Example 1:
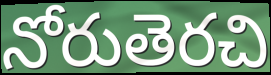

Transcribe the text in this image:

నోరుతెరచి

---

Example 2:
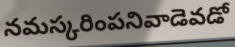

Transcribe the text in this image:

నమస్కరింపనివాడెవడో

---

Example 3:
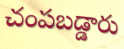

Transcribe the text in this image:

చంపబడ్డారు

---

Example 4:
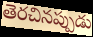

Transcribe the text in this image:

తెరచినప్పుడు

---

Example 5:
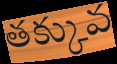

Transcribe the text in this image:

తక్కువ